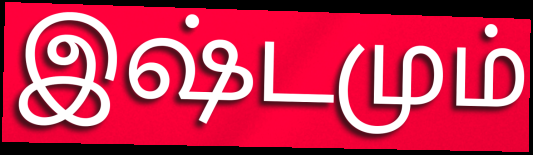
இஷ்டமும்